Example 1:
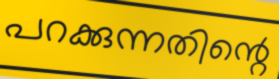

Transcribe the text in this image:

പറക്കുന്നതിന്റെ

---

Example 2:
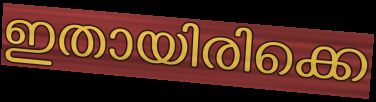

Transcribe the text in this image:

ഇതായിരിക്കെ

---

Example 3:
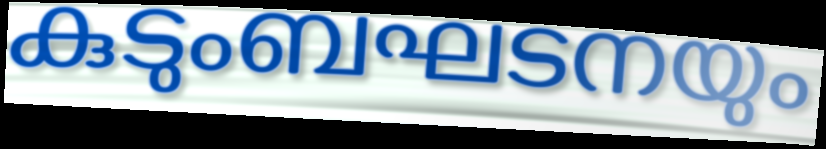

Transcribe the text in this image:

കുടുംബഘടനയും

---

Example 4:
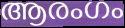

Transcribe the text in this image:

ആരംഗം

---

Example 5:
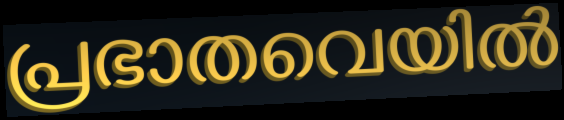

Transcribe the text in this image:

പ്രഭാതവെയിൽ